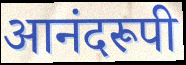
आनंदरूपी